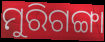
ମୁରିଗଙ୍ଗା